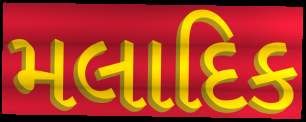
મલાદિક